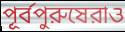
পূর্বপুরুষেরাও